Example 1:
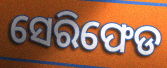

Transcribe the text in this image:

ସେରିଫେଡ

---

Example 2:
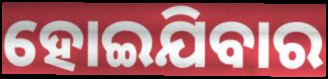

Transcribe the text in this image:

ହୋଇଯିବାର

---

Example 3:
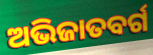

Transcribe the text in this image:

ଅଭିଜାତବର୍ଗ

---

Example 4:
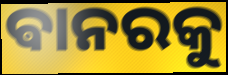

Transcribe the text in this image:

ଵାନରକୁ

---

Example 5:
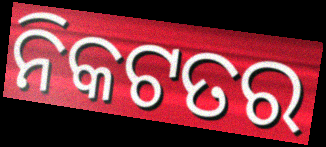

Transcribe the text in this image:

ନିକଟତର